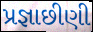
પ્રજ્ઞાછીણી